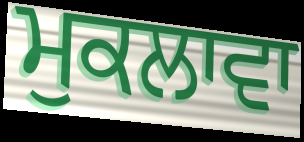
ਮੁਕਲਾਵਾ